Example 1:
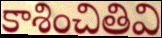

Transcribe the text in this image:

కాశించితివి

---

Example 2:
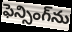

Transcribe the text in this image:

ఫెన్సింగ్‌ను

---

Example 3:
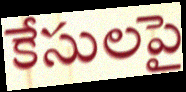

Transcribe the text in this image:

కేసులపై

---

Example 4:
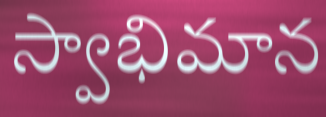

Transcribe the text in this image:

స్వాభిమాన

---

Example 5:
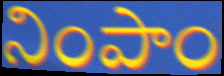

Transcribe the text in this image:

నింపాం